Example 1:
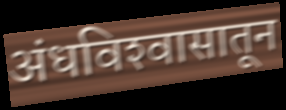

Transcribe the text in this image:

अंधविश्वासातून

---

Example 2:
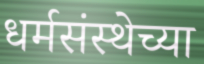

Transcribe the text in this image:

धर्मसंस्थेच्या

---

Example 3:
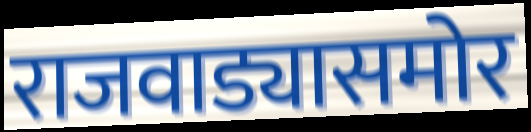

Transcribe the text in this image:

राजवाड्यासमोर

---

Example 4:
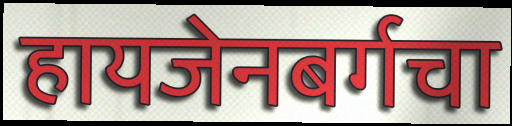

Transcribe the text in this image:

हायजेनबर्गचा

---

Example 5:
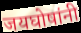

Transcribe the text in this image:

जयघोषांनी